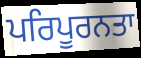
ਪਰਿਪੂਰਨਤਾ